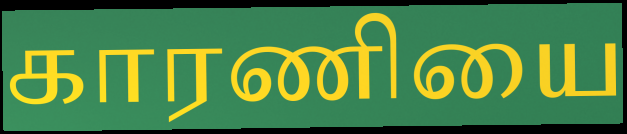
காரணியை